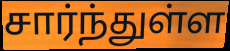
சார்ந்துள்ள